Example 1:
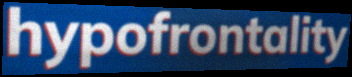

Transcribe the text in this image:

hypofrontality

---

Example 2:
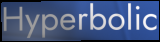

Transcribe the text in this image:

Hyperbolic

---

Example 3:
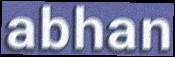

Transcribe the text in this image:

abhan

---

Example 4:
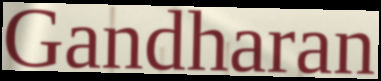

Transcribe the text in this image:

Gandharan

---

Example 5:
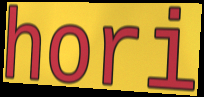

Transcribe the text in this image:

hori